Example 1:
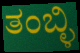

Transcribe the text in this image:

ತಂಬ್ಳಿ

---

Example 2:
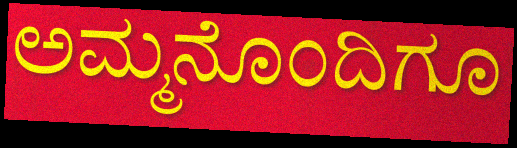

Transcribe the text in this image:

ಅಮ್ಮನೊಂದಿಗೂ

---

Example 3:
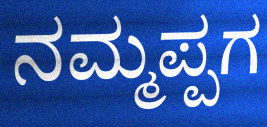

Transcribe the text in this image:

ನಮ್ಮಪ್ಪಗ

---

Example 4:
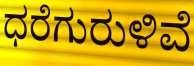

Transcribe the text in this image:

ಧರೆಗುರುಳಿವೆ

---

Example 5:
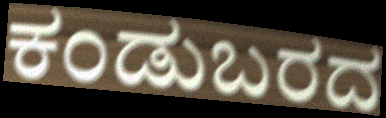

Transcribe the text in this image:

ಕಂಡುಬರದ